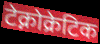
टेक्नोक्रेटिक